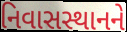
નિવાસસ્થાનને